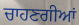
ਚਾਹਣਗੀਆਂ